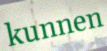
kunnen